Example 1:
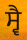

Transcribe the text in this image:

ਸ੍ਵੈ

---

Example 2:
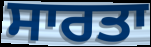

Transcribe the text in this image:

ਸਾਰਤਾ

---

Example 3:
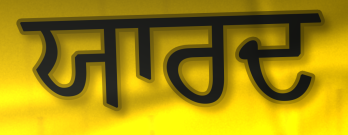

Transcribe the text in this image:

ਯਾਰਦ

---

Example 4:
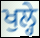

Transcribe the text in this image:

ਖੁਲ੍ਹੇ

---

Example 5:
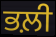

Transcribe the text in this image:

ਭਲ਼ੀ